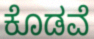
ಕೊಡವೆ